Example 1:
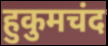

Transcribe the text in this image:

हुकुमचंद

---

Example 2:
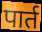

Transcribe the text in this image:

पार्त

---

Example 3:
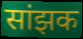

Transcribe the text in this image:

सांझक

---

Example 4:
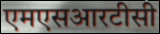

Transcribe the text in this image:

एमएसआरटीसी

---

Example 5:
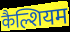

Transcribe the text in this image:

कैल्शियम